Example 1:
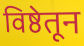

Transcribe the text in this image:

विष्ठेतून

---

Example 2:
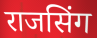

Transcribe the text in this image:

राजसिंग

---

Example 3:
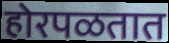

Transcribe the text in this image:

होरपळतात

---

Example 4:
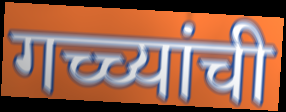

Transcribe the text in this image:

गच्च्यांची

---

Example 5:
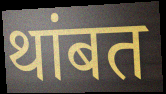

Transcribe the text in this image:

थांबत